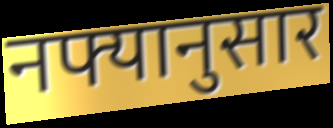
नफ्यानुसार